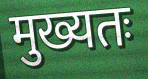
मुख्यतः